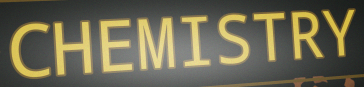
CHEMISTRY